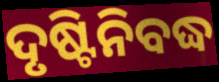
ଦୃଷ୍ଟିନିବଦ୍ଧ